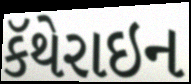
કૅથેરાઇન